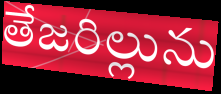
తేజరిల్లును